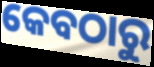
କେବଠାରୁ